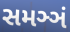
સમઞ્ઞં